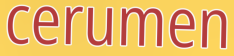
cerumen